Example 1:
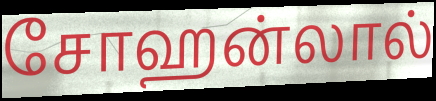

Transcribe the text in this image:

சோஹன்லால்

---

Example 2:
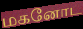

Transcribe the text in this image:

மகனோட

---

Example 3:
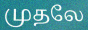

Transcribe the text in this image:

முதலே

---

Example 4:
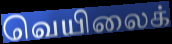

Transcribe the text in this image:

வெயிலைக்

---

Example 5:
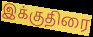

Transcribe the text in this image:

இக்குதிரை